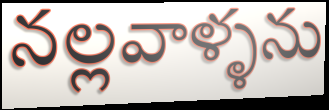
నల్లవాళ్ళను